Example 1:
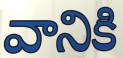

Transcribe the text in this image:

వానికి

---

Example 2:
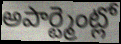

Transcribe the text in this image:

అపార్ట్మెంట్లో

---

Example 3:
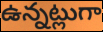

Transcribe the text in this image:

ఉన్నట్లుగా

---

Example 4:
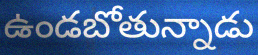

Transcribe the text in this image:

ఉండబోతున్నాడు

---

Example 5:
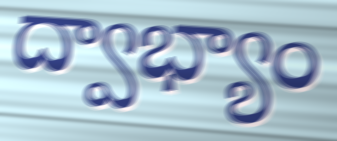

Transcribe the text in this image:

ద్వాభ్యాం